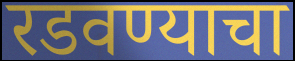
रडवण्याचा